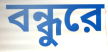
বন্ধুরে